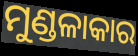
ମୁଣ୍ଡଳାକାର